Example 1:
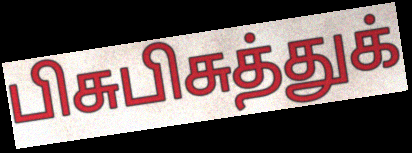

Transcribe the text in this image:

பிசுபிசுத்துக்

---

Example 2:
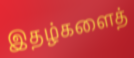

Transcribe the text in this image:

இதழ்களைத்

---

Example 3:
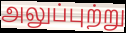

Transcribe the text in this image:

அலுப்புற்று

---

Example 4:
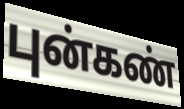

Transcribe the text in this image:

புன்கண்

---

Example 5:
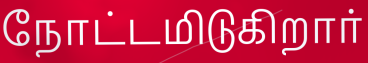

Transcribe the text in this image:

நோட்டமிடுகிறார்